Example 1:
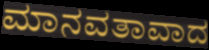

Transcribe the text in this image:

ಮಾನವತಾವಾದ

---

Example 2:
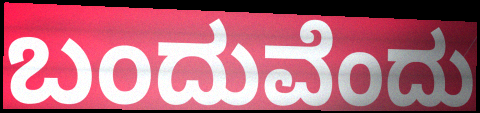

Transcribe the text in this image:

ಬಂದುವೆಂದು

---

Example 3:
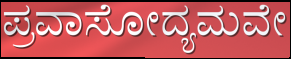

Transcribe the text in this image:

ಪ್ರವಾಸೋದ್ಯಮವೇ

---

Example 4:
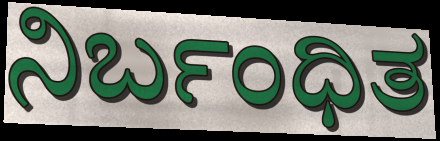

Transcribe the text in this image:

ನಿರ್ಬಂಧಿತ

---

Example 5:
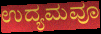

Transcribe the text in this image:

ಉದ್ಯಮವೂ